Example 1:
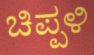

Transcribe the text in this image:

ಚಿಪ್ಪಳಿ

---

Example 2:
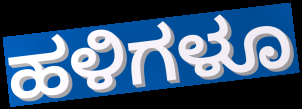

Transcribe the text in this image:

ಹಳಿಗಳೂ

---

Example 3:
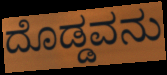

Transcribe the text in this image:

ದೊಡ್ಡವನು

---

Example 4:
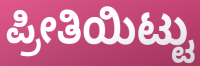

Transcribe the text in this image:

ಪ್ರೀತಿಯಿಟ್ಟು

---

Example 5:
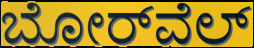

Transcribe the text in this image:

ಬೋರ್‌ವೆಲ್